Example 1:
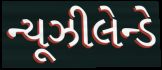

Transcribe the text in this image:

ન્યૂઝીલેન્ડે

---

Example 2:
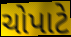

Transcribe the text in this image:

ચોપાટે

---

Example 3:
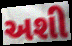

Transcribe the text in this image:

અશી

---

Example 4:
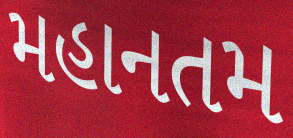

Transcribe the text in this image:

મહાનતમ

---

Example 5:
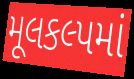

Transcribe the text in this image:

મૂલકલ્પમાં